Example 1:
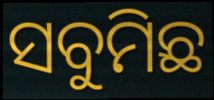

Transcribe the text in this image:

ସବୁମିଛ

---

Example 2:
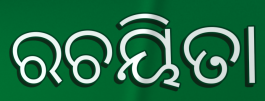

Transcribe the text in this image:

ରଚୟିତା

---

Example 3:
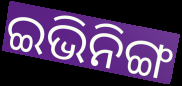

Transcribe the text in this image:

ଇଭିନିଙ୍ଗ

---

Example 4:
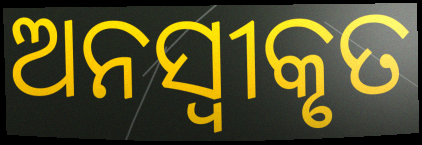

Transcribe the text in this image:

ଅନସ୍ବୀକୃତ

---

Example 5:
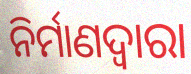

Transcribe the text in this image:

ନିର୍ମାଣଦ୍ୱାରା